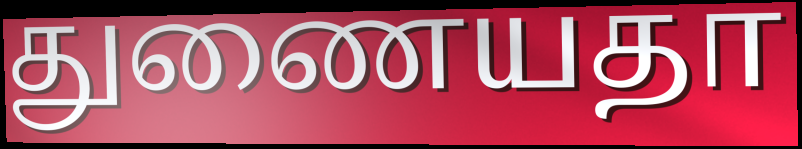
துணையதா